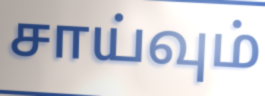
சாய்வும்